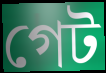
গেট